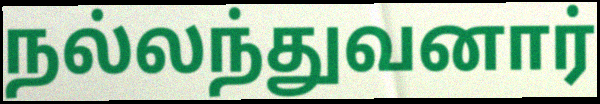
நல்லந்துவனார்